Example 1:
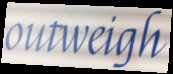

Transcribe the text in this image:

outweigh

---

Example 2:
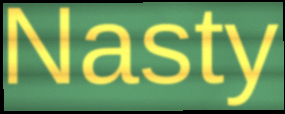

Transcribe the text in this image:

Nasty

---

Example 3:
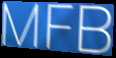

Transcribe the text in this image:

MFB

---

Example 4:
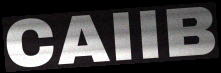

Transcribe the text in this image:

CAIIB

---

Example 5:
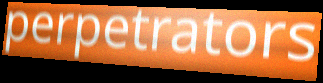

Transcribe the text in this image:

perpetrators